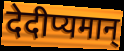
देदीप्यमान्